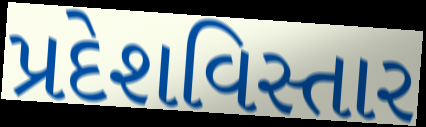
પ્રદેશવિસ્તાર